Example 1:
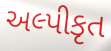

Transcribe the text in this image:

અલ્પીકૃત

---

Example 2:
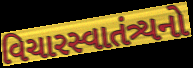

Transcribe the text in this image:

વિચારસ્વાતંત્ર્યનો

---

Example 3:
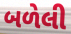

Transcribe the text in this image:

બળેલી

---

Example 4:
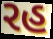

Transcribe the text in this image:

રહ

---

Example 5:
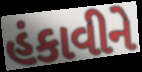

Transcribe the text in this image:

હંકાવીને